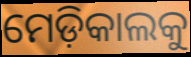
ମେଡ଼ିକାଲକୁ